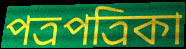
পত্রপত্রিকা